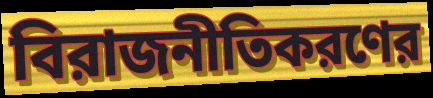
বিরাজনীতিকরণের